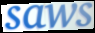
saws